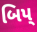
બિપ્